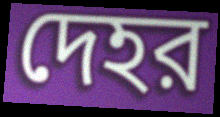
দেহর